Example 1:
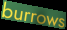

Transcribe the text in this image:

burrows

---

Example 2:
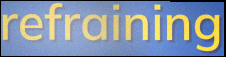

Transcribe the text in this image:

refraining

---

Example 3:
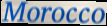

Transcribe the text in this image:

Morocco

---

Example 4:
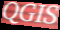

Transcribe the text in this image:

QGIS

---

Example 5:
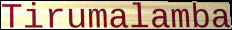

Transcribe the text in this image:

Tirumalamba